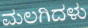
ಮಲಗಿದಳು